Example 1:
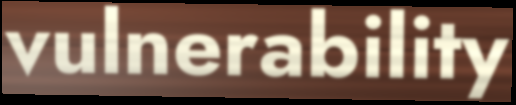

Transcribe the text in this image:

vulnerability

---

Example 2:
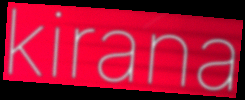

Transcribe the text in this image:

kirana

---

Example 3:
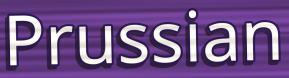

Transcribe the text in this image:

Prussian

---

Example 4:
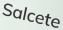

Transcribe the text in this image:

Salcete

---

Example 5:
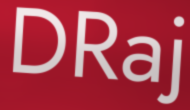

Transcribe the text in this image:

DRaj